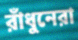
রাঁধুনেরা